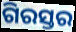
ଗିରସ୍ତର